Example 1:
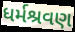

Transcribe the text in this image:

ધર્મશ્રવણ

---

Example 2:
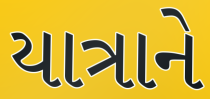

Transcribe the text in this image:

યાત્રાને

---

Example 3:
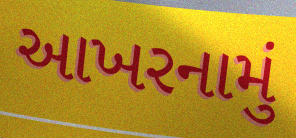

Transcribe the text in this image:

આખરનામું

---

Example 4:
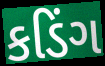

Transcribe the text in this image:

કડિંગ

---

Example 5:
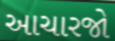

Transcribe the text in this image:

આચારજો